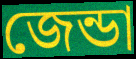
জেন্ডা